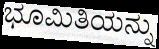
ಭೂಮಿತಿಯನ್ನು